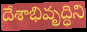
దేశాభివృద్ధిని